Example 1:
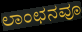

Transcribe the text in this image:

ಲಾಂಛನವೂ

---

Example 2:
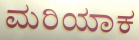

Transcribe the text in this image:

ಮರಿಯಾಕ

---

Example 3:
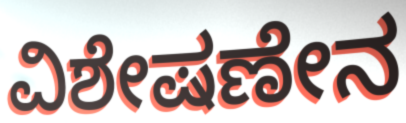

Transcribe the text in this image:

ವಿಶೇಷಣೇನ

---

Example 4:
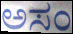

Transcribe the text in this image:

ಅಸಂ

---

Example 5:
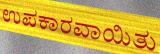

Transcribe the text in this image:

ಉಪಕಾರವಾಯಿತು